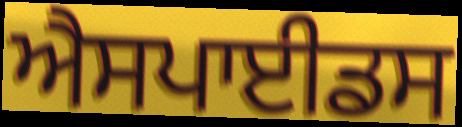
ਐਸਪਾਈਡਸ